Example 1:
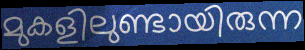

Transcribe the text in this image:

മുകളിലുണ്ടായിരുന്ന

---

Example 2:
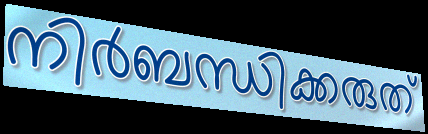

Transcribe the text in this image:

നിർബന്ധിക്കരുത്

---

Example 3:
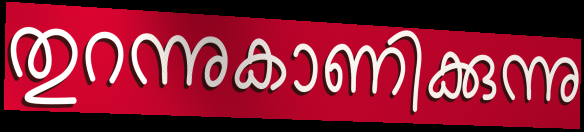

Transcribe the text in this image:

തുറന്നുകാണിക്കുന്നു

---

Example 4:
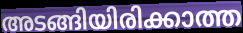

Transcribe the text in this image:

അടങ്ങിയിരിക്കാത്ത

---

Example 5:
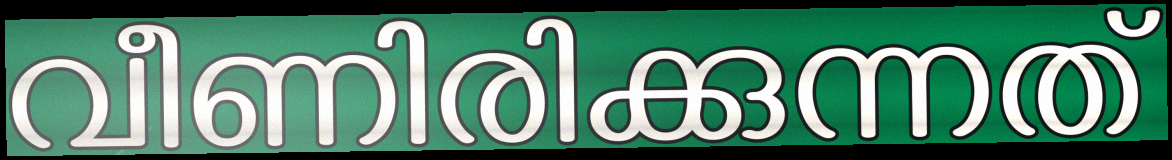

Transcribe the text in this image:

വീണിരിക്കുന്നത്